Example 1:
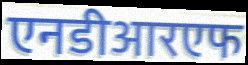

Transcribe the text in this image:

एनडीआरएफ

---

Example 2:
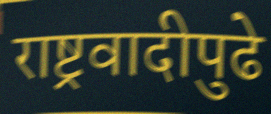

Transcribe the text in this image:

राष्ट्रवादीपुढे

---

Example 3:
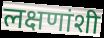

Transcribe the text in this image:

लक्षणांशी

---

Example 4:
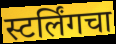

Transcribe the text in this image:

स्टर्लिंगचा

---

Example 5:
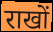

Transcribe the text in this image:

राखों